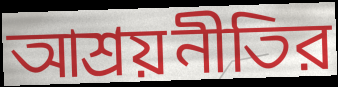
আশ্রয়নীতির